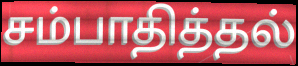
சம்பாதித்தல்